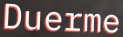
Duerme